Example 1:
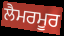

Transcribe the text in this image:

ਲੈਮਰਮੂਰ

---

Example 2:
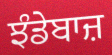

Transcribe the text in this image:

ਝੰਡੇਬਾਜ਼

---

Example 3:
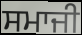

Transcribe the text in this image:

ਸਮਾਜੀ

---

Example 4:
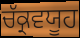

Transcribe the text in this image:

ਚੱਕ੍ਰਵਯੂਹ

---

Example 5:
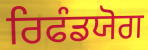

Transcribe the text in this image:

ਰਿਫੰਡਯੋਗ